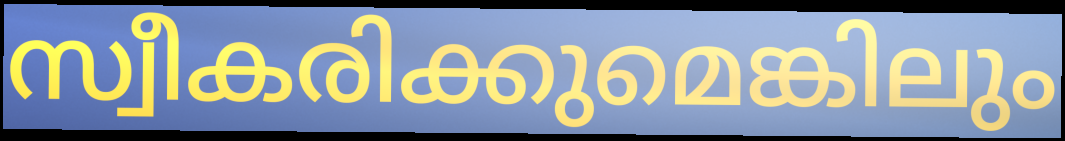
സ്വീകരിക്കുമെങ്കിലും